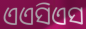
ଏଏସିଏସ